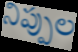
నిప్పుల